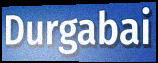
Durgabai